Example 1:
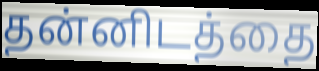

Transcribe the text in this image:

தன்னிடத்தை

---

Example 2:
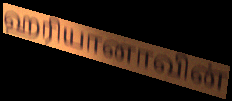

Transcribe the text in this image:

ஹரியானாவின்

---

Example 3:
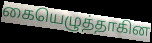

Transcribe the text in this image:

கையெழுத்தாகின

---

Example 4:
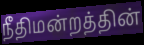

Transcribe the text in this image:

நீதிமன்றத்தின்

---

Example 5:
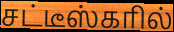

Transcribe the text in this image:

சட்டீஸ்கரில்